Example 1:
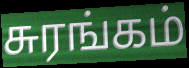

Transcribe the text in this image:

சுரங்கம்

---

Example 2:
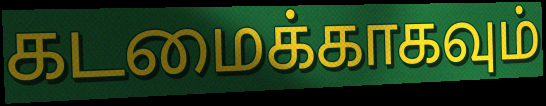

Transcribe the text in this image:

கடமைக்காகவும்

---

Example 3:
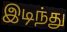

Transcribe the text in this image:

இடிந்து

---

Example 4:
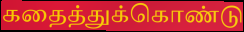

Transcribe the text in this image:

கதைத்துக்கொண்டு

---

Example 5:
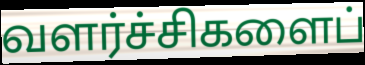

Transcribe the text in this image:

வளர்ச்சிகளைப்